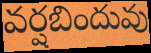
వర్షబిందువు